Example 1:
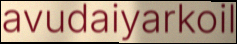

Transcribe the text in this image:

avudaiyarkoil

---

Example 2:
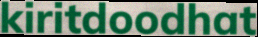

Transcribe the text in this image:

kiritdoodhat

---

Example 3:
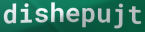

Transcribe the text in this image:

dishepujt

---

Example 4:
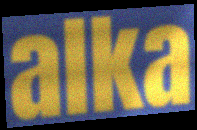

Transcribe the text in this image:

alka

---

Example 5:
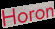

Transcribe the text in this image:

Horon